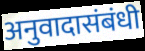
अनुवादासंबंधी